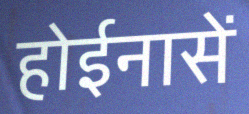
होईनासें